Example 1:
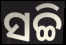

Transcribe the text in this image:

ସଚ୍ଚି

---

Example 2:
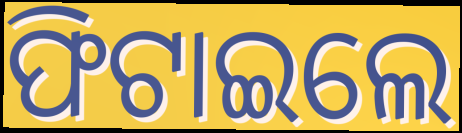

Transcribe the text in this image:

ଫିଟାଇଲେ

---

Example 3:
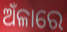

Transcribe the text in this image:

ଅଁଳାରେ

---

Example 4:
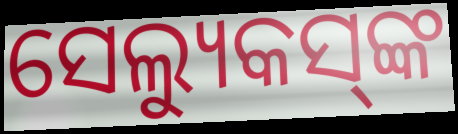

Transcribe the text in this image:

ସେଲ୍ୟୁକସ୍‌ଙ୍କ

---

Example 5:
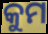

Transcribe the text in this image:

କୁମ